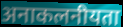
अनाकलनीयता